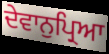
ਦੇਵਾਨੁਪ੍ਰਿਆ